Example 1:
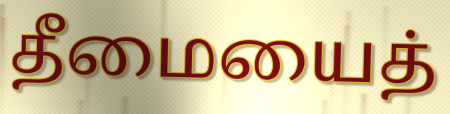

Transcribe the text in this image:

தீமையைத்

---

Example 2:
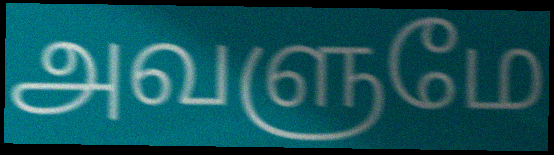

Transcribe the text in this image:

அவளுமே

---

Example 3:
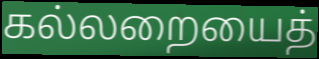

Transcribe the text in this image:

கல்லறையைத்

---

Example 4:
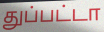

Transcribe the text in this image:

துப்பட்டா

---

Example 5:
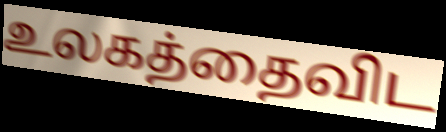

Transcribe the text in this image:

உலகத்தைவிட